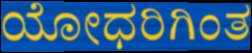
ಯೋಧರಿಗಿಂತ